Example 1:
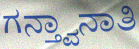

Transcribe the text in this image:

ಗನ್ತ್ವಾನಾತಿ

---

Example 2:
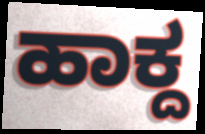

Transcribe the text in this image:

ಹಾಕ್ದ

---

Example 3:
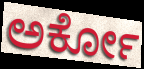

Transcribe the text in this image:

ಅರ್ಕೋ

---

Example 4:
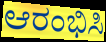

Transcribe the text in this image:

ಆರಂಭಿಸಿ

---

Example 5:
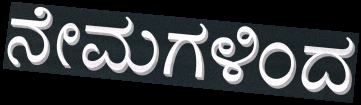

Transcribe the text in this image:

ನೇಮಗಳಿಂದ